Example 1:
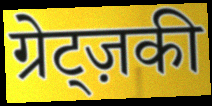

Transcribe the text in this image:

ग्रेट्ज़की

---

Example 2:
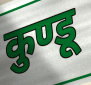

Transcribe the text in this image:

कुण्डू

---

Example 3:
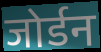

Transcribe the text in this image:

जोर्डन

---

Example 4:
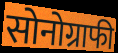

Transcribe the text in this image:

सोनोग्राफी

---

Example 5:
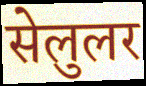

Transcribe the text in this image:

सेलुलर